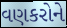
વણકરોને